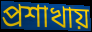
প্রশাখায়